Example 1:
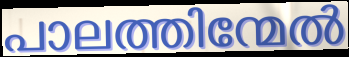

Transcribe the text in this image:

പാലത്തിന്മേൽ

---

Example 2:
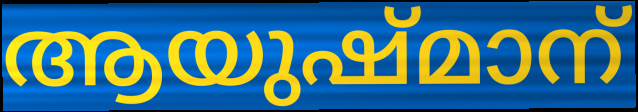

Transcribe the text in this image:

ആയുഷ്മാന്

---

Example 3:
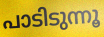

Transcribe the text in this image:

പാടിടുന്നൂ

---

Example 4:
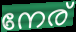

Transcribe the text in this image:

നേര്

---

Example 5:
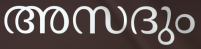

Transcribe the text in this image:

അസദും